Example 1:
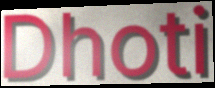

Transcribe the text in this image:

Dhoti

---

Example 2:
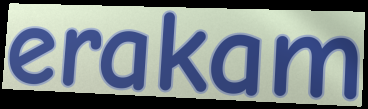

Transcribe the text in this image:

erakam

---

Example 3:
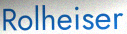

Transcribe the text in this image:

Rolheiser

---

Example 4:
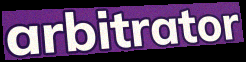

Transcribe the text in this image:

arbitrator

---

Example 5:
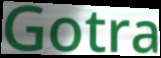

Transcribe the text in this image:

Gotra